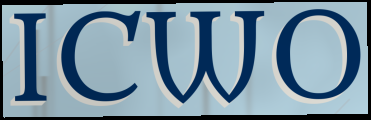
ICWO